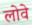
लोवे